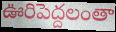
ఊరిపెద్దలంతా